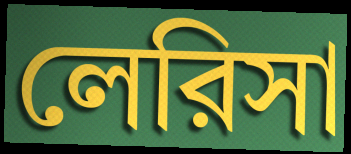
লেরিসা